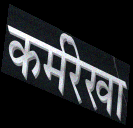
कर्मरेखा